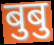
बुबु